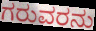
ಗರುವರನು